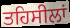
ਤਹਿਸੀਲਾਂ